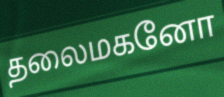
தலைமகனோ